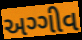
અગ્ગીવ